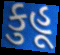
કુહૂ